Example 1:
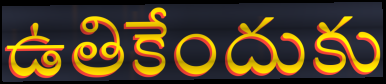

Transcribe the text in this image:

ఉతికేందుకు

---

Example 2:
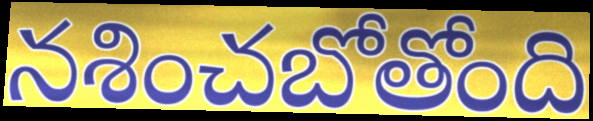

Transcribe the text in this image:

నశించబోతోంది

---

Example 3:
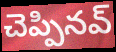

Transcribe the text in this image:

చెప్పినవ్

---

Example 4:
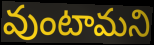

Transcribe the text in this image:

వుంటామని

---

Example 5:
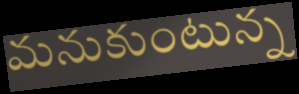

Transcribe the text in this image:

మనుకుంటున్న